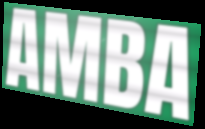
AMBA